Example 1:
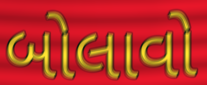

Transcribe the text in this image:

બોલાવો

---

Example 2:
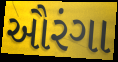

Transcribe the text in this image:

ઔરંગા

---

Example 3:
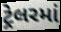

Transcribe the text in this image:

ટ્રેલરમાં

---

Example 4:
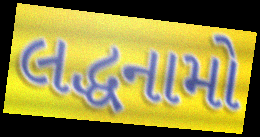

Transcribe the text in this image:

લદ્ધનામો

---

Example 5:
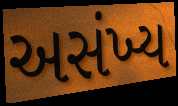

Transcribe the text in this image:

અસંખ્ય